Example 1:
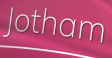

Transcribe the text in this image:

Jotham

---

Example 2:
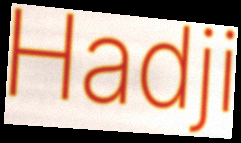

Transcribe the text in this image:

Hadji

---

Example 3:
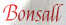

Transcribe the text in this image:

Bonsall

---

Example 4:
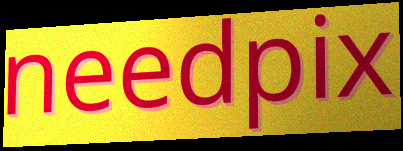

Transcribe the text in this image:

needpix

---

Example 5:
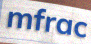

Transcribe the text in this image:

mfrac